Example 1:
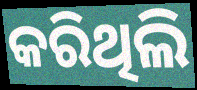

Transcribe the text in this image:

କରିଥିଲି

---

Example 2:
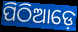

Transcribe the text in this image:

ପିଠିଆଡ଼େ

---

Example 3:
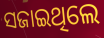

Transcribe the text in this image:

ସଜାଇଥିଲେ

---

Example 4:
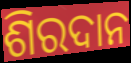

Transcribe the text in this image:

ଶିରଦାନ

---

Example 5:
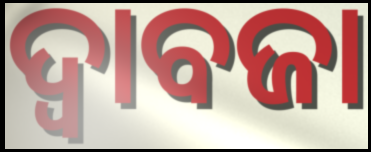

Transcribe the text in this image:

ଦ୍ୱାବଜା